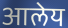
आलेय